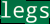
legs